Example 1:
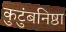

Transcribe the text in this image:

कुटुंबनिष्ठा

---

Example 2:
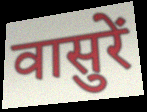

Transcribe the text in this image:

वासुरें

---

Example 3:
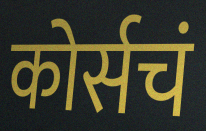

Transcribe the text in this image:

कोर्सचं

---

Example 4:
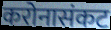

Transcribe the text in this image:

करोनासंकट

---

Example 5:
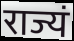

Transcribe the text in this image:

राज्यं